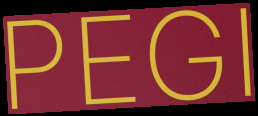
PEGI